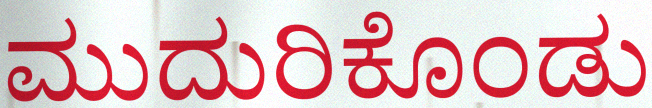
ಮುದುರಿಕೊಂಡು